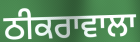
ਠੀਕਰਾਵਾਲਾ